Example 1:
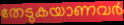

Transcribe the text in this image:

തേടുകയാണവർ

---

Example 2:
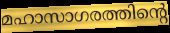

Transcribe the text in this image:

മഹാസാഗരത്തിന്റെ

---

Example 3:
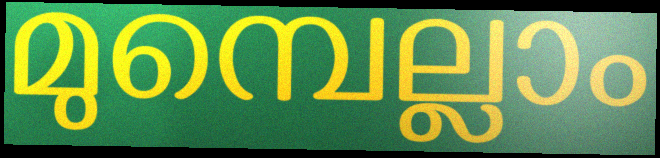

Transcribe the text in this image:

മുമ്പെല്ലാം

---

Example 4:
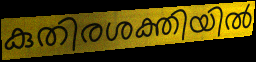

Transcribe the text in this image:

കുതിരശക്തിയിൽ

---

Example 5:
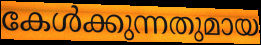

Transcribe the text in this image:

കേൾക്കുന്നതുമായ